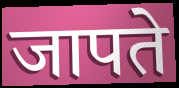
जापते